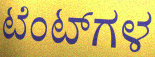
ಟೆಂಟ್‌ಗಳ